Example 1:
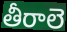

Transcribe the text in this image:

తీరాలె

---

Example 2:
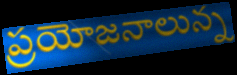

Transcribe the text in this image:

ప్రయోజనాలున్న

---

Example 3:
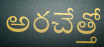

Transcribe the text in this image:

అరచేత్తో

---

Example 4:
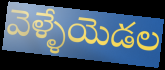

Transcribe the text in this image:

వెళ్ళేయెడల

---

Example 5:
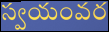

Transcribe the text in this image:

స్వయంవర